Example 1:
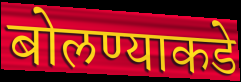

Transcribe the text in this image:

बोलण्याकडे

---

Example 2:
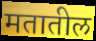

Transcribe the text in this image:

मतातील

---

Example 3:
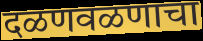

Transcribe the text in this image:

दळणवळणाचा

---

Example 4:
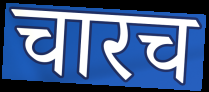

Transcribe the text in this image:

चारच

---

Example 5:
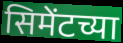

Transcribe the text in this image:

सिमेंटच्या